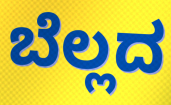
ಬೆಲ್ಲದ